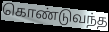
கொண்டுவந்த